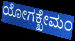
ಯೋಗಕ್ಖೇಮಂ